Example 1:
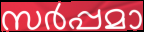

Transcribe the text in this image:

സർപ്പമാ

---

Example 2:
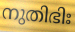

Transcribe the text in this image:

നുതിഭിഃ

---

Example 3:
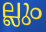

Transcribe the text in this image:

ല്ലും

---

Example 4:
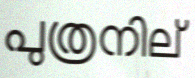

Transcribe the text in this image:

പുത്രനില്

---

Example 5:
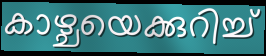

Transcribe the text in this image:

കാഴ്ചയെക്കുറിച്ച്